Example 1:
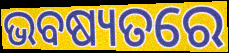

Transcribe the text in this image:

ଭବଷ୍ୟତରେ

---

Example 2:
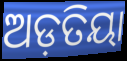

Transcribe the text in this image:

ଅଡ଼ତିୟା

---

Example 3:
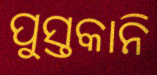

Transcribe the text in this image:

ପୁସ୍ତକାନି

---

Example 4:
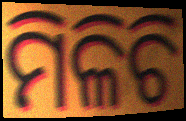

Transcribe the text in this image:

ମିଳିଚି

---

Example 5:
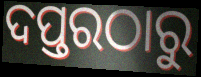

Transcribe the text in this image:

ଦପ୍ତରଠାରୁ